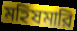
মহিষমারি